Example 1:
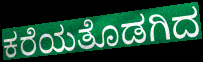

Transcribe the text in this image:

ಕರೆಯತೊಡಗಿದ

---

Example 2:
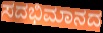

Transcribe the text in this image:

ಸದಭಿಮಾನದ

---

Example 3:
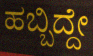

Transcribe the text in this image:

ಹಬ್ಬಿದ್ದೇ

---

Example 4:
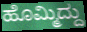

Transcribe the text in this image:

ಹೊಮ್ಮಿದ್ದು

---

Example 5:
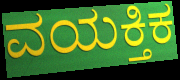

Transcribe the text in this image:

ವಯಕ್ತಿಕ